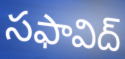
సఫావిద్